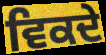
ਵਿਕਦੇ